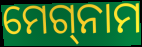
ମେଗ୍‌ନାମ